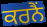
ਕਰਨੈਂ